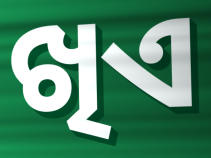
ଖିଏ